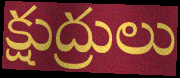
క్షుద్రులు